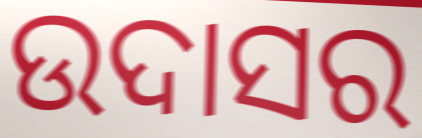
ଉଦାସର